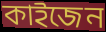
কাইজেন